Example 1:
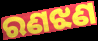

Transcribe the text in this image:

ରଣଝଣ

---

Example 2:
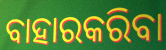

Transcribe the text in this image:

ବାହାରକରିବା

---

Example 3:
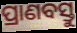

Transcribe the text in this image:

ପ୍ରାଣବସ୍ତୁ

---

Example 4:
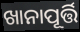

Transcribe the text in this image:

ଖାନାପୂର୍ତ୍ତି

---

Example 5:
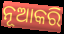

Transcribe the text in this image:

ନୂଆକରି